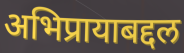
अभिप्रायाबद्दल